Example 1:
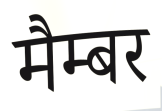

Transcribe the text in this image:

मैम्बर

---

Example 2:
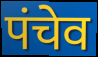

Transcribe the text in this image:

पंचेव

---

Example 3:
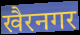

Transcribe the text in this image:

खैरनगर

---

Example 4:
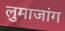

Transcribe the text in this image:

लुमाजांग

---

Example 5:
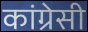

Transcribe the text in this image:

कांग्रेसी